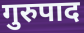
गुरुपाद